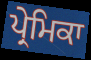
ਪ੍ਰੇਮਿਕਾ